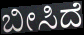
ಬೀಸಿದೆ